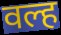
वल्ह